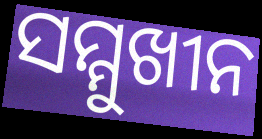
ସମ୍ମୁଖୀନ